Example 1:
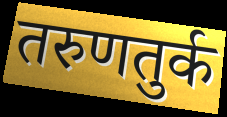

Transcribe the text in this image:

तरुणतुर्क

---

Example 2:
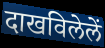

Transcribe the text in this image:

दाखविलेलें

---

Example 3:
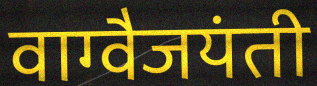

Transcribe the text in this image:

वाग्वैजयंती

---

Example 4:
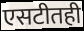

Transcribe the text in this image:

एसटीतही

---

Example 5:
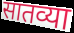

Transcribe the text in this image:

सातव्या